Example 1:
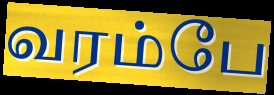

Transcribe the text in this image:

வரம்பே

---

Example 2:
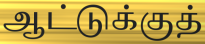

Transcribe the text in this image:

ஆட்டுக்குத்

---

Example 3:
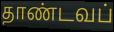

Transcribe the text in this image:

தாண்டவப்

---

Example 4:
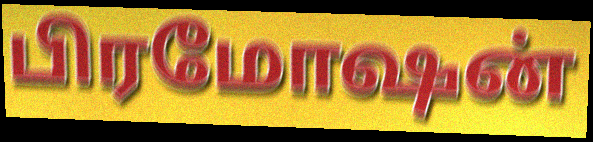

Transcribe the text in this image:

பிரமோஷன்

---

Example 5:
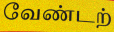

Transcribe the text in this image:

வேண்டற்